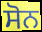
ਸੋਨ